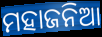
ମହାଜନିଆ